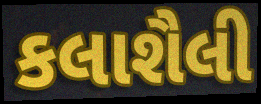
કલાશૈલી